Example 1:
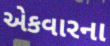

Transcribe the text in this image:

એકવારના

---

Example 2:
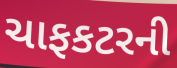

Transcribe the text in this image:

ચાફકટરની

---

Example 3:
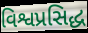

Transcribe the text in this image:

વિશ્વપ્રસિદ્ધ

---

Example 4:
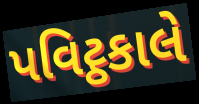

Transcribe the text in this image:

પવિટ્ઠકાલે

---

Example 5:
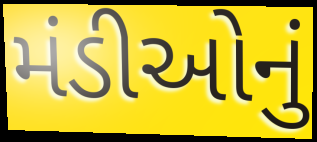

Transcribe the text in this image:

મંડીઓનું